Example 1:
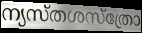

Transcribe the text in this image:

ന്യസ്തശസ്ത്രോ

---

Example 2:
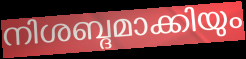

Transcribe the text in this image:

നിശബ്ദമാക്കിയും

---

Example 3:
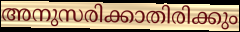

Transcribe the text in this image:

അനുസരിക്കാതിരിക്കും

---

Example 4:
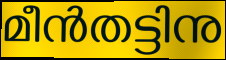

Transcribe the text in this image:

മീൻതട്ടിനു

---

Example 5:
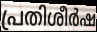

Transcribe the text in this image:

പ്രതിശീർഷ